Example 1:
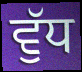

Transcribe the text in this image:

ਵੁੱਧ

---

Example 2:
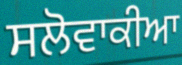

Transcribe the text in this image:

ਸਲੋਵਾਕੀਆ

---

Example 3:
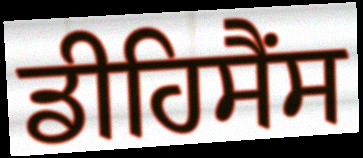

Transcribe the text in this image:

ਡੀਹਿਸੈਂਸ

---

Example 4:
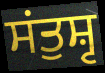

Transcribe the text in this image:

ਸਂਤੁਸ਼੍ਟ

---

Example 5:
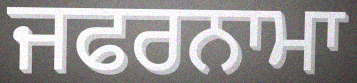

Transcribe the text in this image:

ਜਫਰਨਾਮਾ